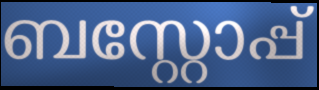
ബസ്റ്റോപ്പ്